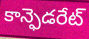
కాన్ఫెడరేట్